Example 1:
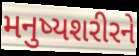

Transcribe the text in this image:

મનુષ્યશરીરને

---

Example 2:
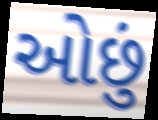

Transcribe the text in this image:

ઓછું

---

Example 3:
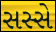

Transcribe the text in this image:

સસ્સે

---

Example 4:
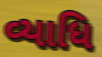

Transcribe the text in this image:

વ્યાધિ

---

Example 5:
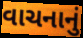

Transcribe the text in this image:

વાચનાનું